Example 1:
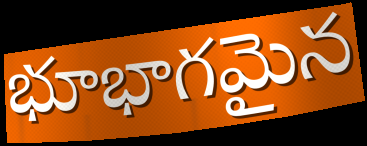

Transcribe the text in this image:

భూభాగమైన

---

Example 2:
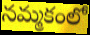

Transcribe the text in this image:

నమ్మకంలో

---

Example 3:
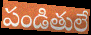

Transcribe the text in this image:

పండితులే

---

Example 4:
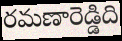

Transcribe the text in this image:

రమణారెడ్డిది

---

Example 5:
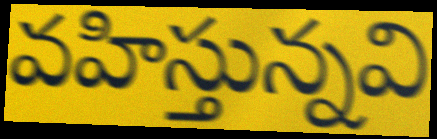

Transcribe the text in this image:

వహిస్తున్నవి